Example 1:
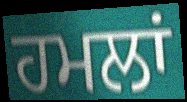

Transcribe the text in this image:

ਹਮਲਾਂ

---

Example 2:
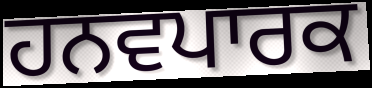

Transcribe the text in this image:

ਹਨਵਪਾਰਕ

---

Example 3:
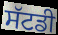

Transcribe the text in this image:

ਸੱਟਡੀ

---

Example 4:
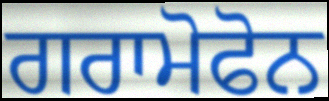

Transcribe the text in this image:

ਗਰਾਮੋਫੋਨ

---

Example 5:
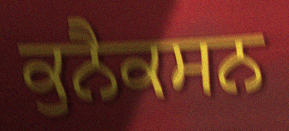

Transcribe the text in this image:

ਕੁਨੈਕਸਨ